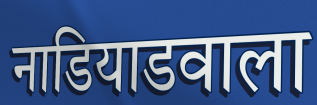
नाडियाडवाला